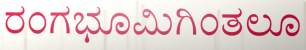
ರಂಗಭೂಮಿಗಿಂತಲೂ